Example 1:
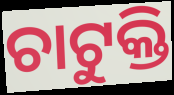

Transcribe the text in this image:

ଚାଟୁକ୍ତି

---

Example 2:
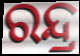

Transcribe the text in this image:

ରନ୍ଦ୍ର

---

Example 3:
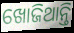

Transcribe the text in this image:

ଖୋଜିଥାନ୍ତି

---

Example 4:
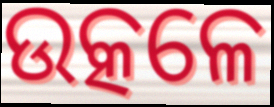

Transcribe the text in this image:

ଉତ୍କଳେ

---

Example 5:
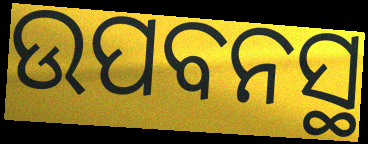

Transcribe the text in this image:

ଉପବନସ୍ଥ